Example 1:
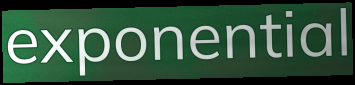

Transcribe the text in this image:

exponential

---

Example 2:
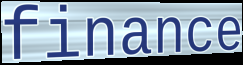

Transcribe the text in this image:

finance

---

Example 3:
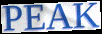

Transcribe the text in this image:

PEAK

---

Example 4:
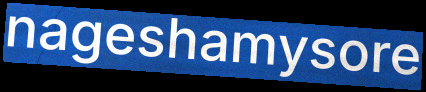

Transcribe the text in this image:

nageshamysore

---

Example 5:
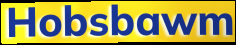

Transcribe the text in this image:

Hobsbawm